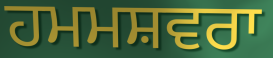
ਹਮਮਸ਼ਵਰਾ